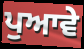
ਪੁਆਵੇ